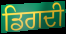
ਡਿਗਦੀ